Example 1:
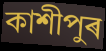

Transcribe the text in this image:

কাশীপুৰ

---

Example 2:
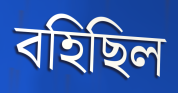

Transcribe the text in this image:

বহিছিল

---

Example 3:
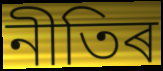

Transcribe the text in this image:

নীতিৰ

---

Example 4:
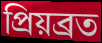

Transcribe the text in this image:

প্ৰিয়ব্ৰত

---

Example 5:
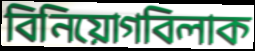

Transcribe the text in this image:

বিনিয়োগবিলাক